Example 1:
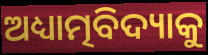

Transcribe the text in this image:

ଅଧ୍ୟାତ୍ମବିଦ୍ୟାକୁ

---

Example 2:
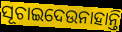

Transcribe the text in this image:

ସୂଚାଇଦେଉନାହାନ୍ତି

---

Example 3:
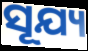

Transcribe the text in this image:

ସୂଯ୍ୟ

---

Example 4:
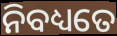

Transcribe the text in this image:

ନିବଧ୍ୟତେ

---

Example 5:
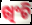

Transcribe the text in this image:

ଖିଂଚି